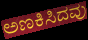
ಅಣಕಿಸಿದವು